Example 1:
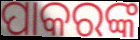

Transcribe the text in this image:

ପାକରଙ୍କ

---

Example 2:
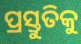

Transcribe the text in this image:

ପ୍ରସ୍ତୁତିକୁ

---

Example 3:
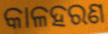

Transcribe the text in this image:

କାଳହରଣ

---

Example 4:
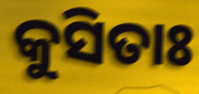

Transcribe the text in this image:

କୁସିତାଃ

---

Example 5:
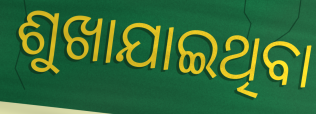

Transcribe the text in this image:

ଶୁଖାଯାଇଥିବା